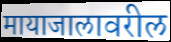
मायाजालावरील